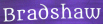
Bradshaw